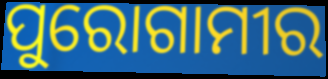
ପୁରୋଗାମୀର